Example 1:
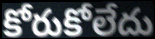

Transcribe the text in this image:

కోరుకోలేదు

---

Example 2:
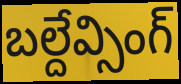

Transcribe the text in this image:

బల్దేవ్సింగ్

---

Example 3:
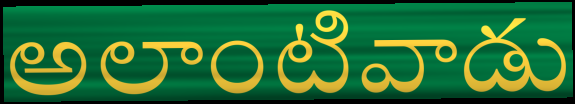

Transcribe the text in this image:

అలాంటివాడు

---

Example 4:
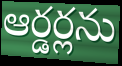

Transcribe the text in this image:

ఆర్డర్లను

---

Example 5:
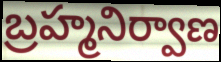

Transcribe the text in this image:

బ్రహ్మనిర్వాణ